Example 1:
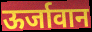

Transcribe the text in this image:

ऊर्जावान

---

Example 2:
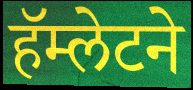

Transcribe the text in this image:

हॅम्लेटने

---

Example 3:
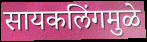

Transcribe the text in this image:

सायकलिंगमुळे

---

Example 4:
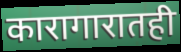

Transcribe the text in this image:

कारागारातही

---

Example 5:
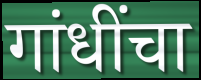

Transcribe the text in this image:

गांधींचा